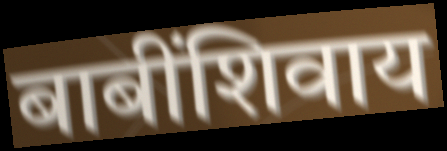
बाबींशिवाय